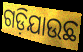
ଗଡ଼ିଯାଉଛ